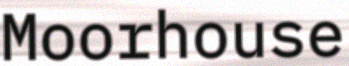
Moorhouse